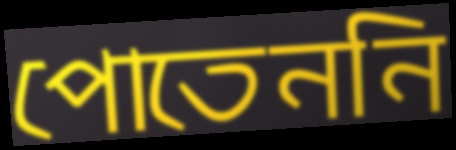
পোতেননি